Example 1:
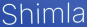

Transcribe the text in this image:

Shimla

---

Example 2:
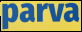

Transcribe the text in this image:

parva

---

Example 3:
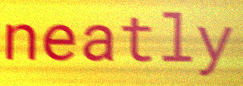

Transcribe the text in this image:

neatly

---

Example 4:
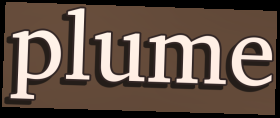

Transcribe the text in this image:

plume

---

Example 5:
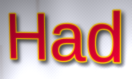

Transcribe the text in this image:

Had